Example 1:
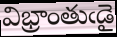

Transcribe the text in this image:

విభ్రాంతుఁడై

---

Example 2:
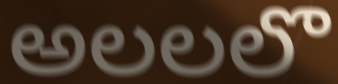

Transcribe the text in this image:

అలలలొ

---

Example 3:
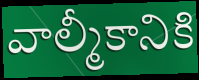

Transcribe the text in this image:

వాల్మీకానికి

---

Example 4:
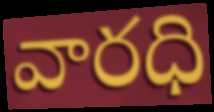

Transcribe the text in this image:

వారధి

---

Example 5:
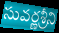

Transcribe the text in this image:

సువర్ణశ్రీని